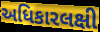
અધિકારલક્ષી